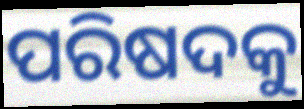
ପରିଷଦକୁ